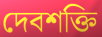
দেবশক্তি